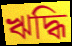
ঋদ্ধি